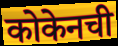
कोकेनची